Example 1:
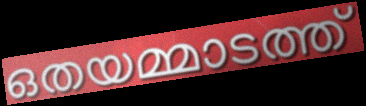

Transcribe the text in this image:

ഒതയമ്മാടത്ത്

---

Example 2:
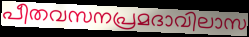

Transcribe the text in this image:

പീതവസനപ്രമദാവിലാസ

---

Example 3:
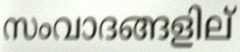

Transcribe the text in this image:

സംവാദങ്ങളില്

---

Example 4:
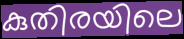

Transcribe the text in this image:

കുതിരയിലെ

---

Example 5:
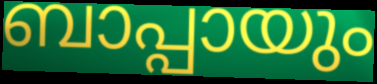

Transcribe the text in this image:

ബാപ്പായും